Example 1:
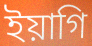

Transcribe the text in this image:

ইয়াগি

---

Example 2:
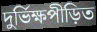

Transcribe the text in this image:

দুর্ভিক্ষপীড়িত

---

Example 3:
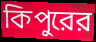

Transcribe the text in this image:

কিপুরের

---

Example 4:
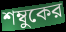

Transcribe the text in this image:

শম্বুকের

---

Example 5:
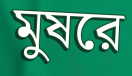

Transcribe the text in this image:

মুষরে